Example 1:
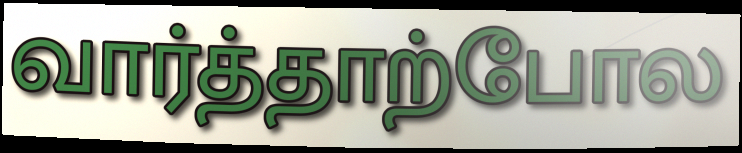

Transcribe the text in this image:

வார்த்தாற்போல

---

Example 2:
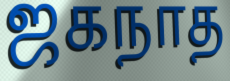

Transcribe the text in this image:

ஜகநாத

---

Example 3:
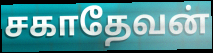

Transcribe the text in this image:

சகாதேவன்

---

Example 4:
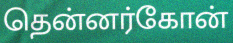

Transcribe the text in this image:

தென்னர்கோன்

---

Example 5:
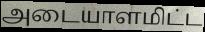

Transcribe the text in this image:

அடையாளமிட்ட